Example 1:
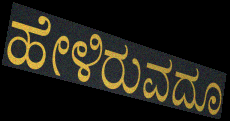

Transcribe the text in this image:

ಹೇಳಿರುವದೂ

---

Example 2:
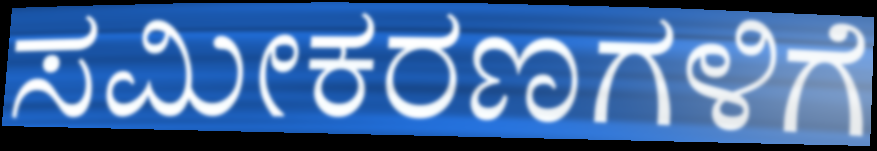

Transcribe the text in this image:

ಸಮೀಕರಣಗಳಿಗೆ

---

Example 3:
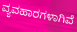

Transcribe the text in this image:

ವ್ಯವಹಾರಗಳಾಗಿವೆ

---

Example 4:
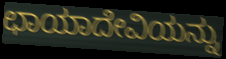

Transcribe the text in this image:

ಛಾಯಾದೇವಿಯನ್ನು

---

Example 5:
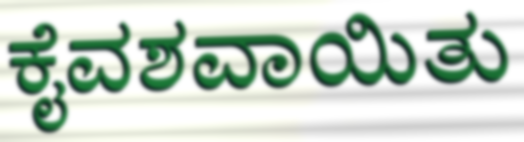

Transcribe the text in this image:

ಕೈವಶವಾಯಿತು